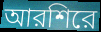
আরশিরে